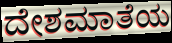
ದೇಶಮಾತೆಯ